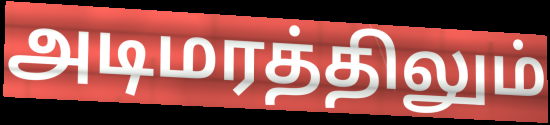
அடிமரத்திலும்